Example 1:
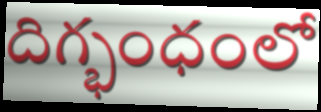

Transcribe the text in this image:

దిగ్భంధంలో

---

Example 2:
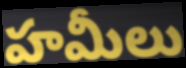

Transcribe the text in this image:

హమీలు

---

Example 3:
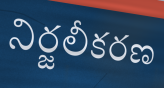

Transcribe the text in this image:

నిర్జలీకరణ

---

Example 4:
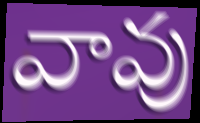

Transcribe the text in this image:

వావు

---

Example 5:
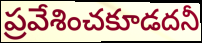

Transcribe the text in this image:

ప్రవేశించకూడదనీ